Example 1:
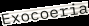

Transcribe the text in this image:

Exocoeria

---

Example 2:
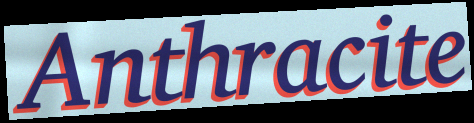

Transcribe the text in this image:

Anthracite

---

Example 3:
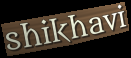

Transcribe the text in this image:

shikhavi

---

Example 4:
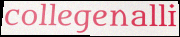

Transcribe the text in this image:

collegenalli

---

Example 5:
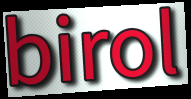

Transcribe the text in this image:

birol